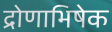
द्रोणाभिषेक